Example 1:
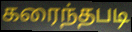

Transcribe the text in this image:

கரைந்தபடி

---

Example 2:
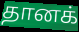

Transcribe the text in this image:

தானக்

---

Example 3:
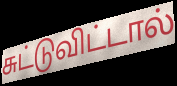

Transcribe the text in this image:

சுட்டுவிட்டால்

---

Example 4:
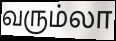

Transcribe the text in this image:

வரும்லா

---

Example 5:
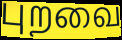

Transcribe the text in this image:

புறவை